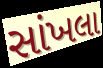
સાંખલા